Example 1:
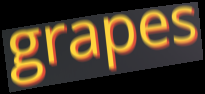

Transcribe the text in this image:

grapes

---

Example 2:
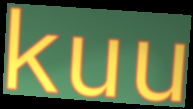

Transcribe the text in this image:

kuu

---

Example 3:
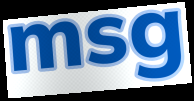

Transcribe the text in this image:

msg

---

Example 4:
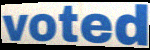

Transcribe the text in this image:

voted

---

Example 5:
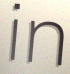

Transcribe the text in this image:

in